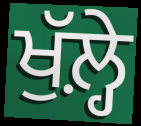
ਖੁੱਲ਼੍ਹੇ